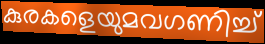
കുരകളെയുമവഗണിച്ച്